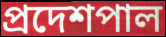
প্রদেশপাল